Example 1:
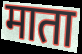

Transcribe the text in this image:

माता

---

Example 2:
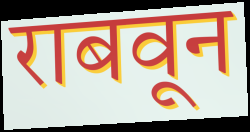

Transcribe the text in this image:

राबवून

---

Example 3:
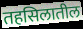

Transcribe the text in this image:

तहसिलातील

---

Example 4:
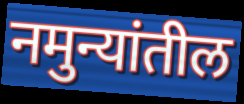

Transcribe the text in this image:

नमुन्यांतील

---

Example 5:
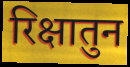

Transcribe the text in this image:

रिक्षातुन